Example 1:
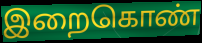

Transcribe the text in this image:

இறைகொண்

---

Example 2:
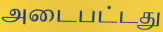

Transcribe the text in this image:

அடைபட்டது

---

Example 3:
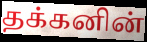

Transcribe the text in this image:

தக்கனின்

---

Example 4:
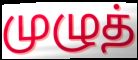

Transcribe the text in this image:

முழுத்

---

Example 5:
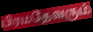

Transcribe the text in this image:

பிரமதேவரும்